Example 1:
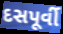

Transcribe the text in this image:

દસપૂર્વી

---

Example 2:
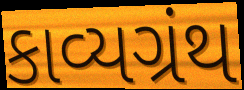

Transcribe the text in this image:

કાવ્યગ્રંથ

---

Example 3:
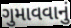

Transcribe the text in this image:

ગુમાવવાનું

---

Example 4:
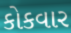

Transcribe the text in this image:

કોકવાર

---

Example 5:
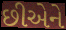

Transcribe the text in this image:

છીએને